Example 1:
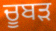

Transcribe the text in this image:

ਚੂਬੜ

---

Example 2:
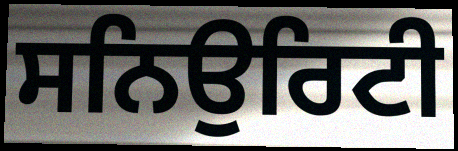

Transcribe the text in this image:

ਸਨਿਉਰਿਟੀ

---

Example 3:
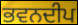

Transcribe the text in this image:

ਭਵਨਦੀਪ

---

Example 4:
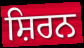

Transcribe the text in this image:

ਸ਼ਿਰਨ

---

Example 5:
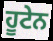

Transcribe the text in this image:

ਹੂਟੇਨ